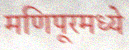
मणिपूरमध्ये